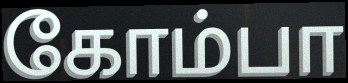
கோம்பா